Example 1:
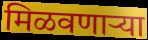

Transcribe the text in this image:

मिळवणाऱ्या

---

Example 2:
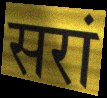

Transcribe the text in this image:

सरां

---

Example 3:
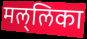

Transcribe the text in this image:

मल्लिका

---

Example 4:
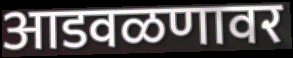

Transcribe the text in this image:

आडवळणावर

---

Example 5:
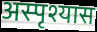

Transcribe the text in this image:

अस्पृश्यास